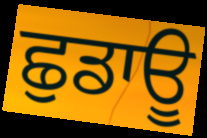
ਛੁਡਾਊ